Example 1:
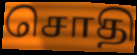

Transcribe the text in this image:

சொதி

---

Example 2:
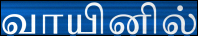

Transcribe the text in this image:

வாயினில்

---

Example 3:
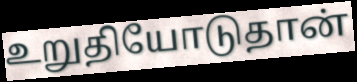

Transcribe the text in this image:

உறுதியோடுதான்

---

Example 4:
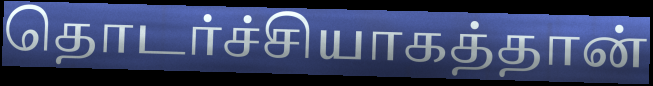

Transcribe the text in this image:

தொடர்ச்சியாகத்தான்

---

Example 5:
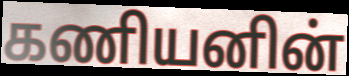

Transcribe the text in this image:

கணியனின்